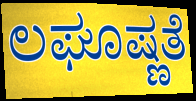
ಲಘೂಷ್ಣತೆ